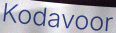
Kodavoor